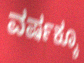
ವರ್ಷಕ್ಕೂ